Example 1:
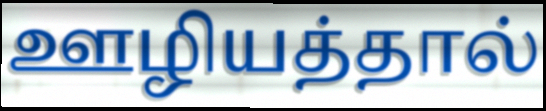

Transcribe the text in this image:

ஊழியத்தால்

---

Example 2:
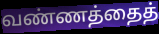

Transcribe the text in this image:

வண்ணத்தைத்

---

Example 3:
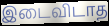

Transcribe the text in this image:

இடைவிடாத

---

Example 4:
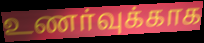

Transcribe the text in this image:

உணர்வுக்காக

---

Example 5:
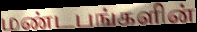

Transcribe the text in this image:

மண்டபங்களின்